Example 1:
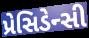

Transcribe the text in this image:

પ્રેસિડેન્સી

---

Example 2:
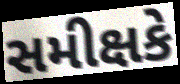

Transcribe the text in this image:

સમીક્ષકે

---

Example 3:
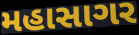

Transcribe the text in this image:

મહાસાગર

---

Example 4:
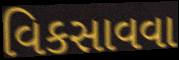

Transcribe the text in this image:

વિકસાવવા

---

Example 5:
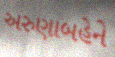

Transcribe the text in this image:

અરુણાબહેને